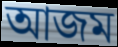
আজম